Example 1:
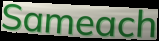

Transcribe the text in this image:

Sameach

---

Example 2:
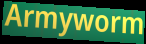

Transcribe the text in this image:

Armyworm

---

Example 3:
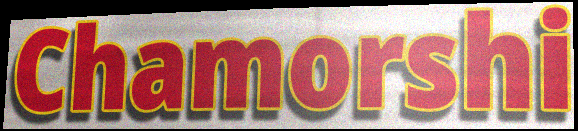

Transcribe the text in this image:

Chamorshi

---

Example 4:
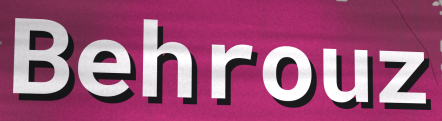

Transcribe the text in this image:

Behrouz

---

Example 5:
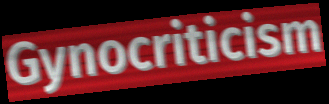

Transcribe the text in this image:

Gynocriticism